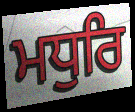
ਮਧੁਰਿ